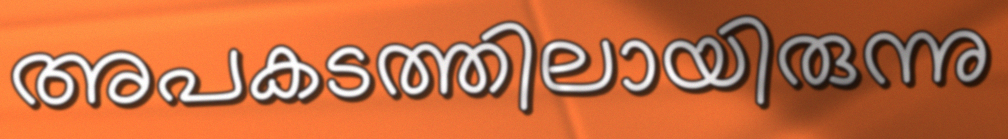
അപകടത്തിലായിരുന്നു